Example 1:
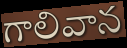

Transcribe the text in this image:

గాలివాన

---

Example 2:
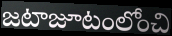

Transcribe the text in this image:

జటాజూటంలోంచి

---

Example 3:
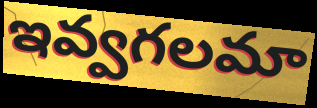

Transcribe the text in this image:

ఇవ్వగలమా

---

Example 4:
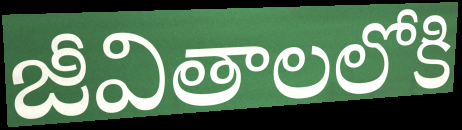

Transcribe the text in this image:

జీవితాలలోకి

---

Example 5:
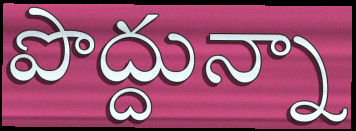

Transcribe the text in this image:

పొద్దున్నా